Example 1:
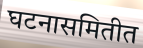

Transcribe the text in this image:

घटनासमितीत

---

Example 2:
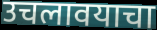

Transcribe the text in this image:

उचलावयाचा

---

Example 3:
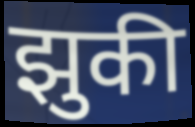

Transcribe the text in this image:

झुकी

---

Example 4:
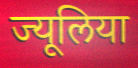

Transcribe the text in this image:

ज्यूलिया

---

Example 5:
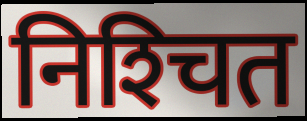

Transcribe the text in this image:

निश्‍चित